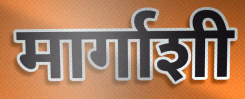
मार्गाशी